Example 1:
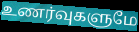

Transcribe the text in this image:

உணர்வுகளுமே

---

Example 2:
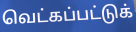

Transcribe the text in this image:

வெட்கப்பட்டுக்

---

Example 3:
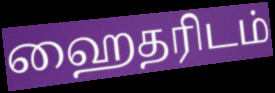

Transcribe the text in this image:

ஹைதரிடம்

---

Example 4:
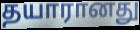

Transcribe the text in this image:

தயாரானது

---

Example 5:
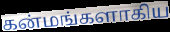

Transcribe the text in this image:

கன்மங்களாகிய